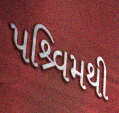
પશ્ર્વિમથી